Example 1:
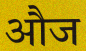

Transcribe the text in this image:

औज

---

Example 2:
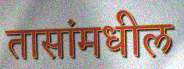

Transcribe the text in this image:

तासांमधील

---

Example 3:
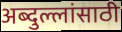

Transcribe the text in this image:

अब्दुल्लांसाठी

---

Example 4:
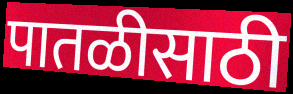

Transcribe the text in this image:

पातळीसाठी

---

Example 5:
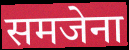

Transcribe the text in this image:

समजेना